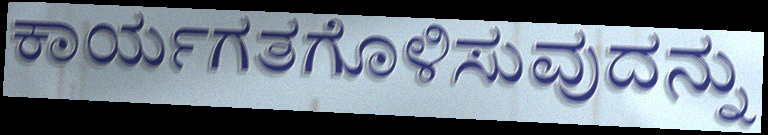
ಕಾರ್ಯಗತಗೊಳಿಸುವುದನ್ನು